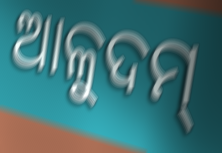
ଆଳୁଦମ୍